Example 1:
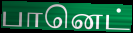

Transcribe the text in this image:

பானெட்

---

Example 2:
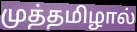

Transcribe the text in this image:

முத்தமிழால்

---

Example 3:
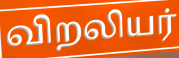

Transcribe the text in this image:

விறலியர்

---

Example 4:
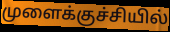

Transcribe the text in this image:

முளைக்குச்சியில்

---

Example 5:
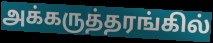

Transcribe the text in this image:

அக்கருத்தரங்கில்